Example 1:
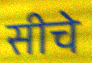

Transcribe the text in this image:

सीचे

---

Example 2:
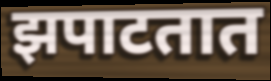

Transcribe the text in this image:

झपाटतात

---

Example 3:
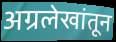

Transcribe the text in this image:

अग्रलेखांतून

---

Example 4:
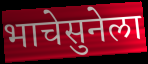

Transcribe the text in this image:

भाचेसुनेला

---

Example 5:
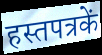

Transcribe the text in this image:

हस्तपत्रकें